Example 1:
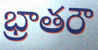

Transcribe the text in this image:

భ్రాతరౌ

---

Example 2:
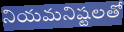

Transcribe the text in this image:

నియమనిష్టలతో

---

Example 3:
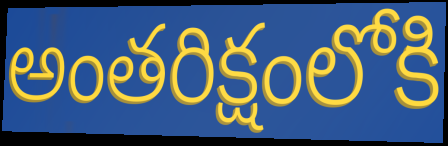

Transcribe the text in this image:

అంతరిక్షంలోకి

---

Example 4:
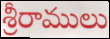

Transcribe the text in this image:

శ్రీరాములు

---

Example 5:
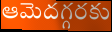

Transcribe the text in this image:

ఆమెదగ్గరకు